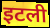
इटली